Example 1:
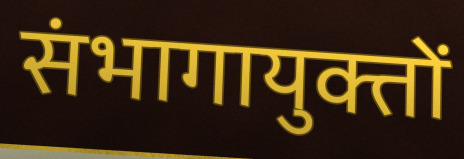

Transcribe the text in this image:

संभागायुक्तों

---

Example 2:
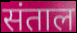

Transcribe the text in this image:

संताल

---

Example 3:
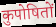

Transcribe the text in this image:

कुपोषितों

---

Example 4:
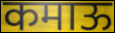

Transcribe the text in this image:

कमाऊ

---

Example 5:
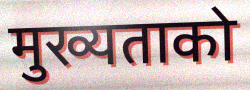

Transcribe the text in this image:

मुख्यताको